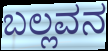
ಬಲ್ಲವನ